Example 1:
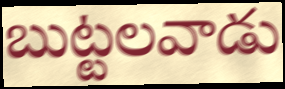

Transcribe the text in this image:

బుట్టలవాడు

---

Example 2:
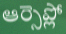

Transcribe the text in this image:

ఆర్సెప్లో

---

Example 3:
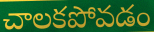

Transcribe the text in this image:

చాలకపోవడం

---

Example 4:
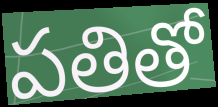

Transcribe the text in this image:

పతితో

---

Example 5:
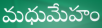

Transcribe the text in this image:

మధుమేహం